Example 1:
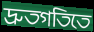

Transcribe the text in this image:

দ্রুতগতিতে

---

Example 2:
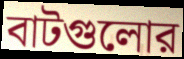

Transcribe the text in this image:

বাটগুলোর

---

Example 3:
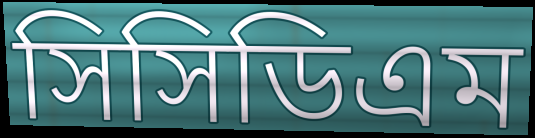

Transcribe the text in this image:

সিসিডিএম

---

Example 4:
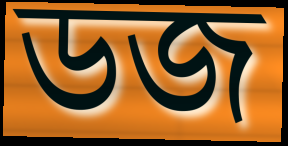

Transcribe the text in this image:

ডজ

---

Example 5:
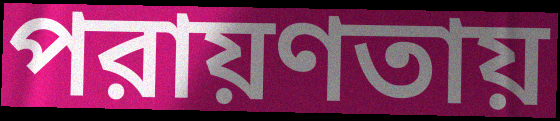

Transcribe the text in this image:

পরায়ণতায়